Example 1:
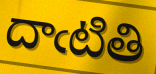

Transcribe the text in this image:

దాఁటితి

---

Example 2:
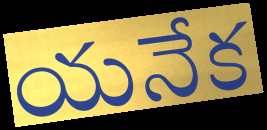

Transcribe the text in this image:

యనేక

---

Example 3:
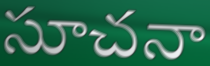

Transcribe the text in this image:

సూచనా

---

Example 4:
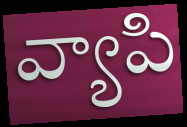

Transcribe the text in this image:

వ్యాపి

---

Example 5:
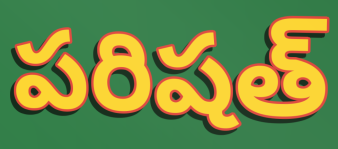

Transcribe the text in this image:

పరిషత్